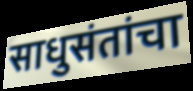
साधुसंतांचा